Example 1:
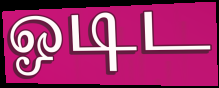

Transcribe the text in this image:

ஓடிட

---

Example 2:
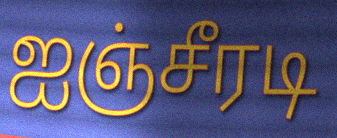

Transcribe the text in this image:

ஐஞ்சீரடி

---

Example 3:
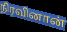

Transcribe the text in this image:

நிரவினான்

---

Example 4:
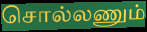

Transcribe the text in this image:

சொல்லணும்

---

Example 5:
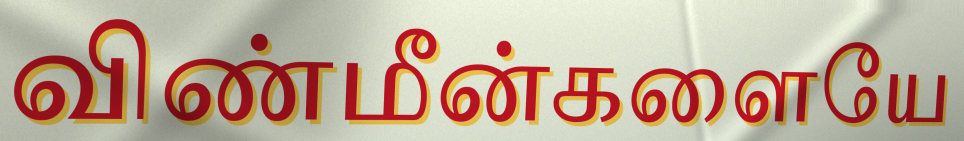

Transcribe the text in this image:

விண்மீன்களையே